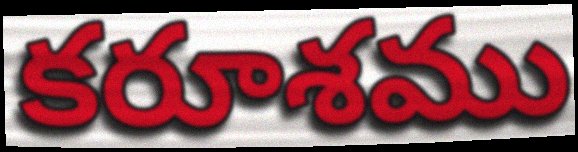
కరూశము